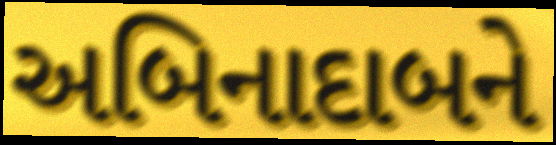
અબિનાદાબને